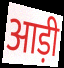
आड़ी